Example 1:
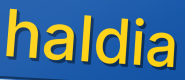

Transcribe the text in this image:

haldia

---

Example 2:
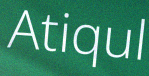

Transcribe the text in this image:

Atiqul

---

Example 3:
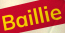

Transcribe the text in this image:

Baillie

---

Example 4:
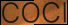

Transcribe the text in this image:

COCI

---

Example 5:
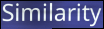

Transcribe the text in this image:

Similarity